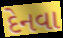
દેનવા